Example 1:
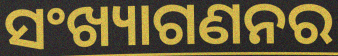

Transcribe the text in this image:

ସଂଖ୍ୟାଗଣନର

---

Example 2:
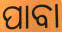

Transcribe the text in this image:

ପାବା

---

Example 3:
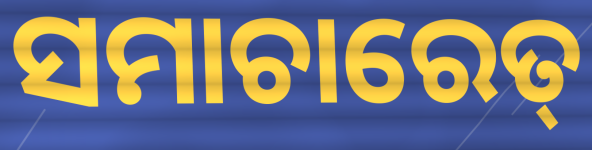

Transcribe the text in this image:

ସମାଚାରେତ୍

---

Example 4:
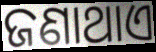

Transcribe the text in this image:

ଜଣାଥାଏ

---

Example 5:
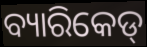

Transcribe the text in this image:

ବ୍ୟାରିକେଡ୍